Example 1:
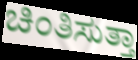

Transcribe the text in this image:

ಚಿಂತಿಸುತ್ತಾ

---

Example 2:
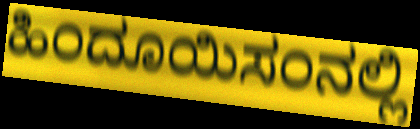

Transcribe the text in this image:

ಹಿಂದೂಯಿಸಂನಲ್ಲಿ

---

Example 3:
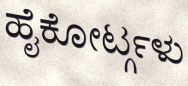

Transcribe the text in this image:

ಹೈಕೋರ್ಟ್ಗಳು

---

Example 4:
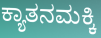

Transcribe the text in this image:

ಕ್ಯಾತನಮಕ್ಕಿ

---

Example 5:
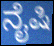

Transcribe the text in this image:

ನೈಷಿ